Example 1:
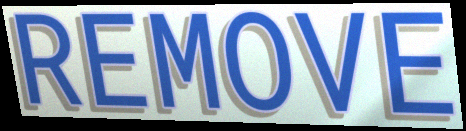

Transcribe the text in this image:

REMOVE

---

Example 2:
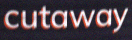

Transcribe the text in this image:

cutaway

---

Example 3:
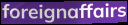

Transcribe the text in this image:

foreignaffairs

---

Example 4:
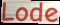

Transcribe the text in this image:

Lode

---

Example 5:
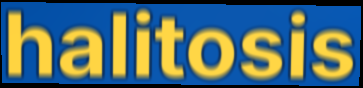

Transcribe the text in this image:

halitosis